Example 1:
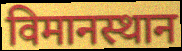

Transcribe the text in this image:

विमानस्थान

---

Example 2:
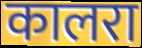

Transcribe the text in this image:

कालरा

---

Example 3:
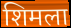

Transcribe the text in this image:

शिमला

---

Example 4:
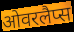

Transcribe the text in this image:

ओवरलैप्स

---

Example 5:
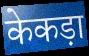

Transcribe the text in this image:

केकड़ा